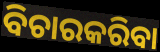
ବିଚାରକରିବା